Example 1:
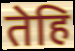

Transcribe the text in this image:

तेहि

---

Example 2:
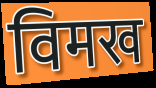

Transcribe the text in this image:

विमख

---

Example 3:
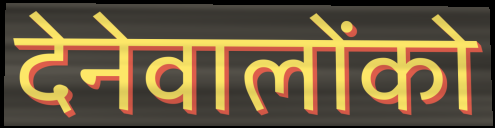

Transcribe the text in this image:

देनेवालोंको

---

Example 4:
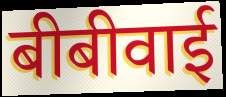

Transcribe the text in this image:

बीबीवाई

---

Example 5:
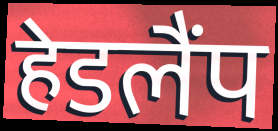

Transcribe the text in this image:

हेडलैंप